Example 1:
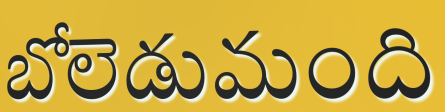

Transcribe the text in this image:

బోలెడుమంది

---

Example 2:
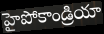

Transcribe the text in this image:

హైపోకాండ్రియా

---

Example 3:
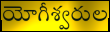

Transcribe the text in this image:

యోగీశ్వరుల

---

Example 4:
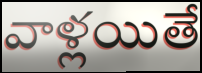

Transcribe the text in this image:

వాళ్లయితే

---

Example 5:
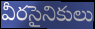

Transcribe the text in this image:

వీరసైనికులు